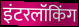
इंटरलॉकिंग